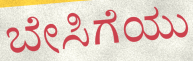
ಬೇಸಿಗೆಯು